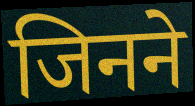
जिनने